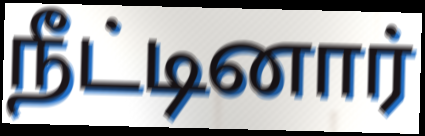
நீட்டினார்